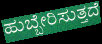
ಹುಬ್ಬೇರಿಸುತ್ತದೆ